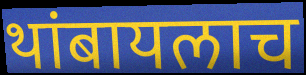
थांबायलाच